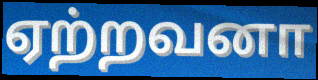
ஏற்றவனா